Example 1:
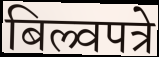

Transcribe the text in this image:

बिल्वपत्रे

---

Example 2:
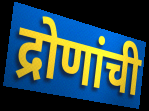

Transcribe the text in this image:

द्रोणांची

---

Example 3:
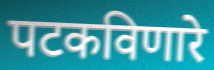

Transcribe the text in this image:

पटकविणारे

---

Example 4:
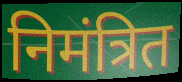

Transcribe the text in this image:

निमंत्रित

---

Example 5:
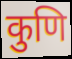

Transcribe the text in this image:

कुणि